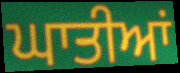
ਘਾਤੀਆਂ